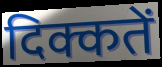
दिक्कतें